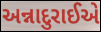
અન્નાદુરાઈએ